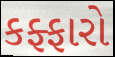
કફ્ફારો